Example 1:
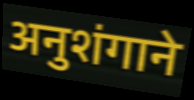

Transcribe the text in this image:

अनुशंगाने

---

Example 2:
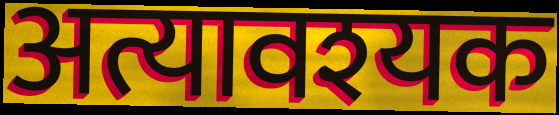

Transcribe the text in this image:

अत्यावश्‍यक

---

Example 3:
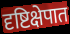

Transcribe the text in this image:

दृष्टिक्षेपात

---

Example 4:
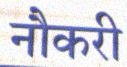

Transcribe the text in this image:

नौकरी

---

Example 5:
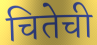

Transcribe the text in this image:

चितेची